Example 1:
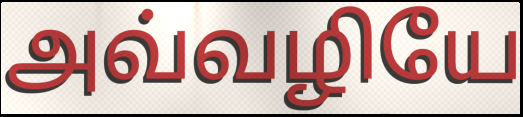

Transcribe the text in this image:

அவ்வழியே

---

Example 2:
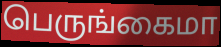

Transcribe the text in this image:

பெருங்கைமா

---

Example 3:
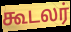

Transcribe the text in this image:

கூடலர்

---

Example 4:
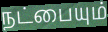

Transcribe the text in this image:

நட்பையும்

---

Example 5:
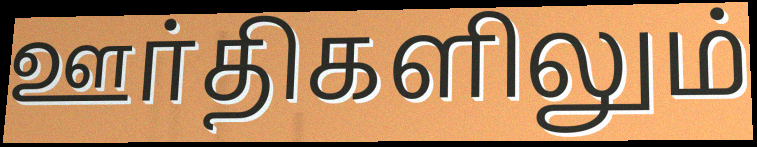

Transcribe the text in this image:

ஊர்திகளிலும்